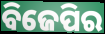
ବିଜେପିର